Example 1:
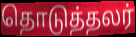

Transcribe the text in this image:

தொடுத்தலர்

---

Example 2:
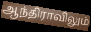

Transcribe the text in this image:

ஆந்திராவிலும்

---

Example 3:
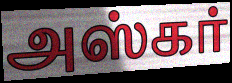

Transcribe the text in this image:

அஸ்கர்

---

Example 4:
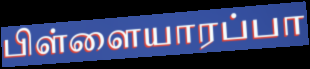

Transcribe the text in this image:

பிள்ளையாரப்பா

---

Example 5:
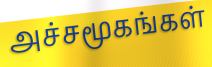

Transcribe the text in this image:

அச்சமூகங்கள்